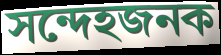
সন্দেহজনক